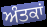
ਅੰਤਕਾਂ